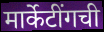
मार्केटींगची